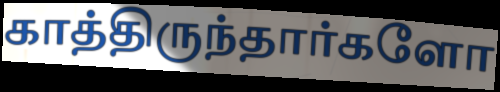
காத்திருந்தார்களோ